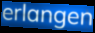
erlangen